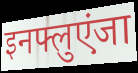
इनफ्लुएंजा